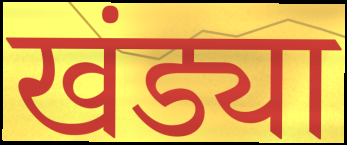
खंड्या